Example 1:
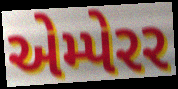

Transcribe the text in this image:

એમ્પેરર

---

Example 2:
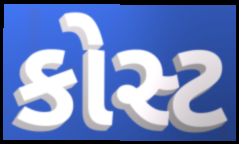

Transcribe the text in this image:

કોસ્ટ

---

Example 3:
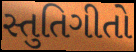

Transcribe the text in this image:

સ્તુતિગીતો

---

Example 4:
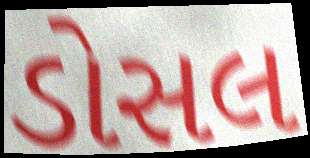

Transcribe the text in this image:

ડોસલ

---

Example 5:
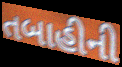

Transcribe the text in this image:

તબાહીની